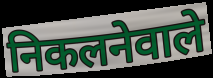
निकलनेवाले